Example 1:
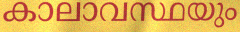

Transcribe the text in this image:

കാലാവസ്ഥയും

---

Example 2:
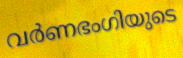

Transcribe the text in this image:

വർണഭംഗിയുടെ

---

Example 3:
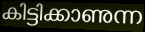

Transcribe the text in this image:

കിട്ടിക്കാണുന്ന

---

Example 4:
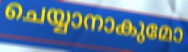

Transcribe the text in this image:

ചെയ്യാനാകുമോ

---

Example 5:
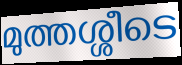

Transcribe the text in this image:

മുത്തശ്ശീടെ